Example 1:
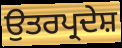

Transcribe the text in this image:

ਉਤਰਪ੍ਰਦੇਸ਼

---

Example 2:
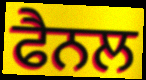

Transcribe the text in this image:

ਫੈਨਲ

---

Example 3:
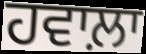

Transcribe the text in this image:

ਹਵਾਲ਼ਾ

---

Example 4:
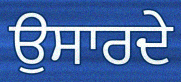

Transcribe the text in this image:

ਉਸਾਰਦੇ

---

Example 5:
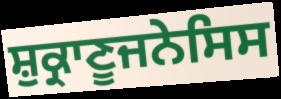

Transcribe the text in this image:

ਸ਼ੁਕ੍ਰਾਣੂਜਨੇਸਿਸ